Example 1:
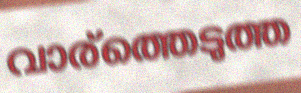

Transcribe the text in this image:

വാര്ത്തെടുത്ത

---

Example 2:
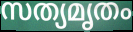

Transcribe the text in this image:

സത്യമൃതം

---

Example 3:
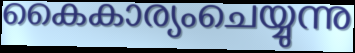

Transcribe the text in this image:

കൈകാര്യംചെയ്യുന്നു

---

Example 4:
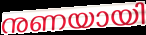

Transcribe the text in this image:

നുണയായി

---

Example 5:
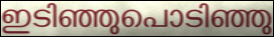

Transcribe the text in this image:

ഇടിഞ്ഞുപൊടിഞ്ഞു